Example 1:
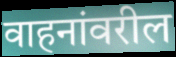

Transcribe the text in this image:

वाहनांवरील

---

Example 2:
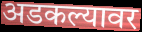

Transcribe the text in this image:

अडकल्यावर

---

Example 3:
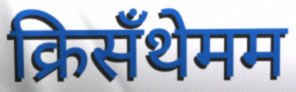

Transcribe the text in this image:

क्रिसँथेमम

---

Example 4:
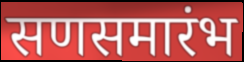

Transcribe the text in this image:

सणसमारंभ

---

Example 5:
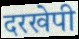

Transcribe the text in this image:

दरखेपी